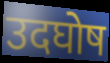
उदघोष